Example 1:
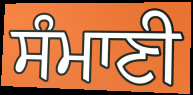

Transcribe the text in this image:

ਸੰਮਾਣੀ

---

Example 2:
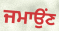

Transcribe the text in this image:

ਜਮਾਉਂਣ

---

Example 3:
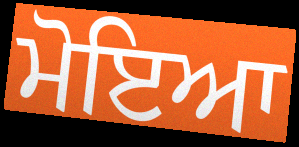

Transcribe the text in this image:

ਮੋਇਆ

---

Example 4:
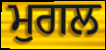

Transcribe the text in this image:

ਮੁਗਲ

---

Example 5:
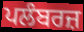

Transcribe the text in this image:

ਪਲੰਬਰਜ਼